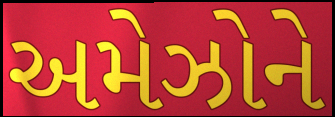
અમેઝોને